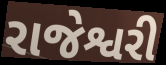
રાજેશ્વરી